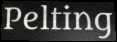
Pelting